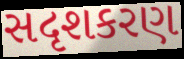
સદૃશકરણ